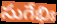
సుగేభిః